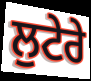
ਲੁਟੇਰੇ